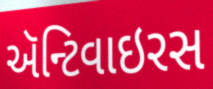
ઍન્ટિવાઇરસ